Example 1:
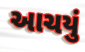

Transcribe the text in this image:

આચયું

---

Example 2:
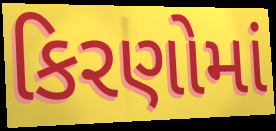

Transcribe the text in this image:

કિરણોમાં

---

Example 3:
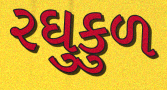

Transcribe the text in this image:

રઘુકુળ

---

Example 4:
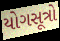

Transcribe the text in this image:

યોગસૂત્રો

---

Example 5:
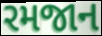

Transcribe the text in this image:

રમજાન